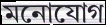
মনোযোগ